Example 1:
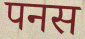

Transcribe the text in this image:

पनस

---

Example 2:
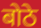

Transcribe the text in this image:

बोठे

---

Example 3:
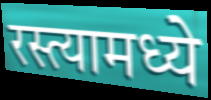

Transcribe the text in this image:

रस्त्यामध्ये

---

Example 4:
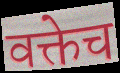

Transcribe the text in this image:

वक्तेच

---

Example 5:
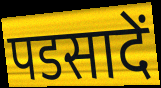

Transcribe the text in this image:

पडसादें